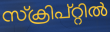
സ്ക്രിപ്റ്റിൽ